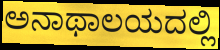
ಅನಾಥಾಲಯದಲ್ಲಿ